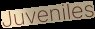
Juveniles